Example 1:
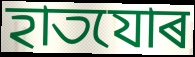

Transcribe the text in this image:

হাতযোৰ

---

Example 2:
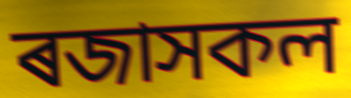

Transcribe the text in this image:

ৰজাসকল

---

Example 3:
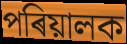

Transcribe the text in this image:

পৰিয়ালক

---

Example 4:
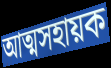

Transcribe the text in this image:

আত্মসহায়ক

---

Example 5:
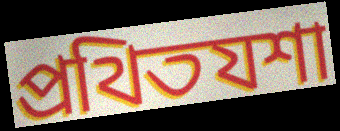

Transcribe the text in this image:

প্ৰথিতযশা